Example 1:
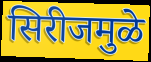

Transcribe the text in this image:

सिरीजमुळे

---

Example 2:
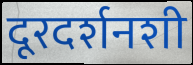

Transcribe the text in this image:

दूरदर्शनशी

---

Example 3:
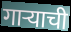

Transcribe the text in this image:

गाऱ्याची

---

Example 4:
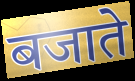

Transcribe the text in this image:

बजाते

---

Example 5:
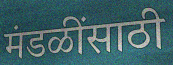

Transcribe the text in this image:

मंडळींसाठी